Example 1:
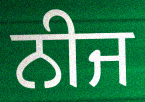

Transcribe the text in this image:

ਨੀਜ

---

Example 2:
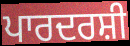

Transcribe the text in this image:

ਪਾਰਦਰਸ਼ੀ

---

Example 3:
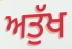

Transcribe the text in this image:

ਅਤੁੱਖ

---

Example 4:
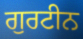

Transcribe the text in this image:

ਗੁਰਟੀਨ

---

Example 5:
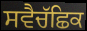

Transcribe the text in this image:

ਸਵੈਚੱਛਿਕ